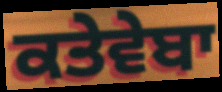
ਕਤੇਵੇਬਾ